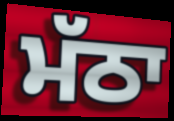
ਮੱਠਾ